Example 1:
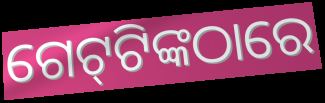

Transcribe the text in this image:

ଗେଟ୍‌ଟିଙ୍କଠାରେ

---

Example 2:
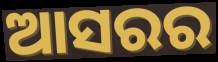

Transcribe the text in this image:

ଆସରର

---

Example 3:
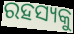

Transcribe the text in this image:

ରହସ୍ୟକୁ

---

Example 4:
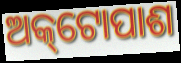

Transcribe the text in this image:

ଅକ୍‌ଟୋପାଶ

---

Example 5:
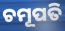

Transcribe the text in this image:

ଚମୂପତି